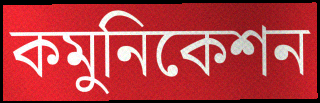
কমুনিকেশন